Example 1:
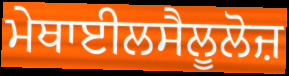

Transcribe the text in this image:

ਮੇਥਾਈਲਸੈਲੂਲੋਜ਼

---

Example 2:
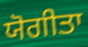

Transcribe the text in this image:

ਯੋਗੀਤਾ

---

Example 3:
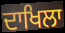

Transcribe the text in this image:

ਦਾਖਿਲਾ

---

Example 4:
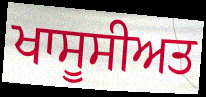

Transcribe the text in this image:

ਖਾਸੂਸੀਅਤ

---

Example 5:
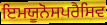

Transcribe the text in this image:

ਇਮਯੂਨੋਸਪਰੈਸਿਵ